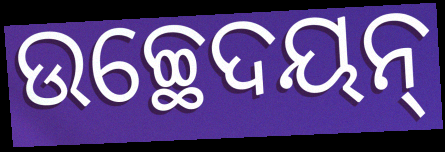
ଉଚ୍ଛେଦୟନ୍